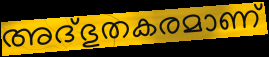
അദ്ഭുതകരമാണ്